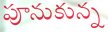
పూనుకున్న